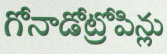
గోనాడోట్రోపిన్లు